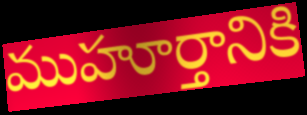
ముహూర్తానికి